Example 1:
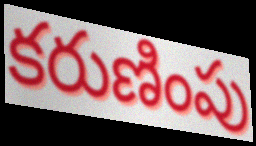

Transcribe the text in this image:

కరుణింపు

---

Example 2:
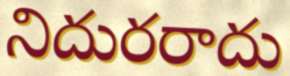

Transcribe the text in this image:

నిదురరాదు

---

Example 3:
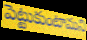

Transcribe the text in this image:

పెట్టుకుంటామని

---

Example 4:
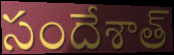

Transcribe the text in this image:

సందేశాత్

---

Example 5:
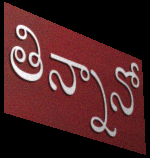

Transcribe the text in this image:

తిన్నానో